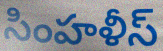
సింహళీస్